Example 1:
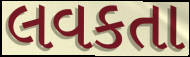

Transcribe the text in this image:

લવકતા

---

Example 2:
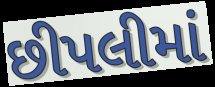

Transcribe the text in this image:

છીપલીમાં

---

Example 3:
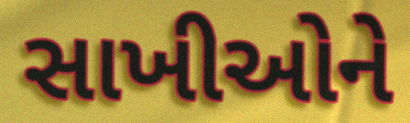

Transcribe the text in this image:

સાખીઓને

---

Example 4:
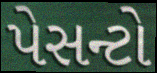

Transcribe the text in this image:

પેસન્ટો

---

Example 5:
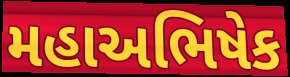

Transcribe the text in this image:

મહાઅભિષેક